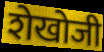
शेखोजी